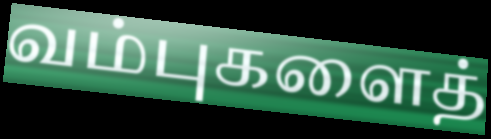
வம்புகளைத்